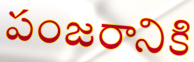
పంజరానికి